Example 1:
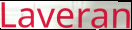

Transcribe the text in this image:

Laveran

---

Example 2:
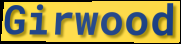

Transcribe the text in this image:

Girwood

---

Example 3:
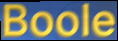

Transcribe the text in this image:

Boole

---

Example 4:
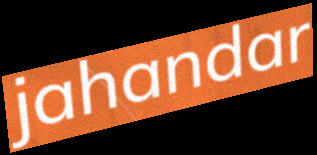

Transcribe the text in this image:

jahandar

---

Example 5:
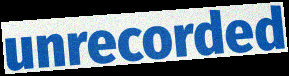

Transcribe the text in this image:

unrecorded